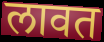
लावत